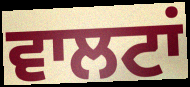
ਵਾਲਟਾਂ